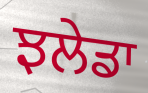
ਝਲੇਡਾ